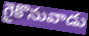
గైకొనువాడు